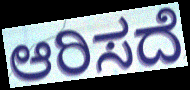
ಆರಿಸದೆ